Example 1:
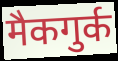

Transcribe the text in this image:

मैकगुर्क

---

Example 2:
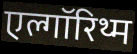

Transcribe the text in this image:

एल्गॉरिथ्म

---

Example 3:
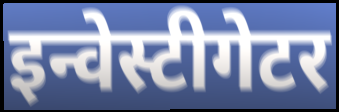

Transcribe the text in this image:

इन्वेस्टीगेटर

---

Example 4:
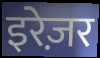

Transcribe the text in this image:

इरेज़र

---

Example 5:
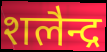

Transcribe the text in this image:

शलैन्द्र